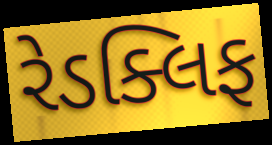
રેડક્લિફ